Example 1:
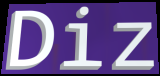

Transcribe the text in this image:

Diz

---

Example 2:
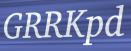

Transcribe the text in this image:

GRRKpd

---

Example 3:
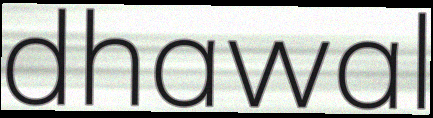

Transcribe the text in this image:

dhawal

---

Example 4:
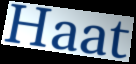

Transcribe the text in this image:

Haat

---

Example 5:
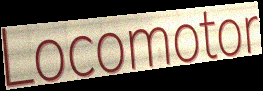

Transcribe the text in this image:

Locomotor